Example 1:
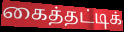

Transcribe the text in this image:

கைத்தட்டிக்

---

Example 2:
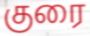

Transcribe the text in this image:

குரை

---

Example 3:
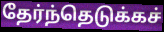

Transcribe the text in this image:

தேர்ந்தெடுக்கச்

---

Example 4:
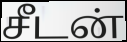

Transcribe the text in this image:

சீடன்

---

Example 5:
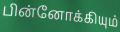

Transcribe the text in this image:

பின்னோக்கியும்